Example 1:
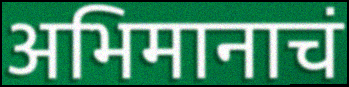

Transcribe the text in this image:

अभिमानाचं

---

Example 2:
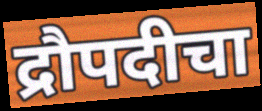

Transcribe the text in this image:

द्रौपदीचा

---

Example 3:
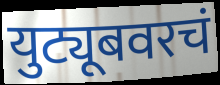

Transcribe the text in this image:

युट्यूबवरचं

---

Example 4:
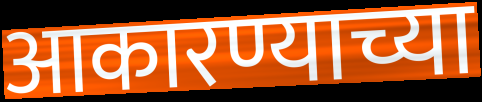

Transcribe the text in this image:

आकारण्याच्या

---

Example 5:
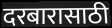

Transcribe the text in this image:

दरबारासाठी